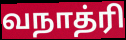
வநாத்ரி